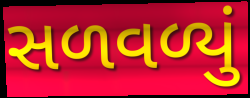
સળવળ્યું